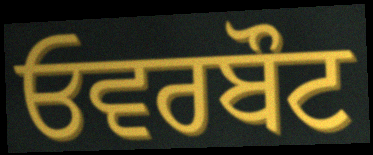
ਓਵਰਬੌਟ